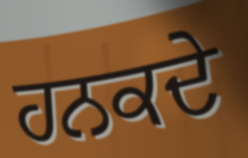
ਹਨਕਦੇ